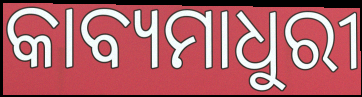
କାବ୍ୟମାଧୁରୀ